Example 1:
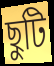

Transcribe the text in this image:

ছুটি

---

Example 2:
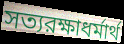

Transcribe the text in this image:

সত্যরক্ষাধর্মার্থ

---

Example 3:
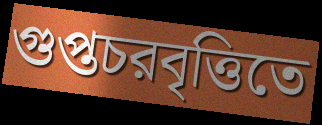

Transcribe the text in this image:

গুপ্তচরবৃত্তিতে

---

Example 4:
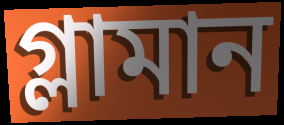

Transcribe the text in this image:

গ্লামান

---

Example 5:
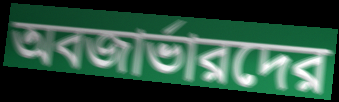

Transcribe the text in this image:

অবজার্ভারদের